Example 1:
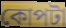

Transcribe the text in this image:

কোপটা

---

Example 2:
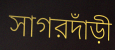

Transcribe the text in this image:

সাগরদাঁড়ী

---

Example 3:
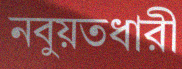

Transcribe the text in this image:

নবুয়তধারী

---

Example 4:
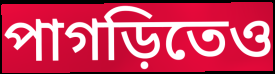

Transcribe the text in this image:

পাগড়িতেও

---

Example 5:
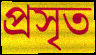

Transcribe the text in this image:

প্রসৃত